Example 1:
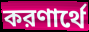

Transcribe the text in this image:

করণার্থে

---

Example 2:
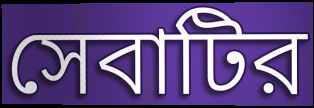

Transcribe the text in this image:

সেবাটির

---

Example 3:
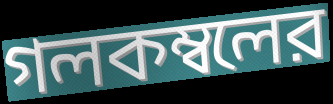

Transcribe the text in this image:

গলকম্বলের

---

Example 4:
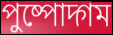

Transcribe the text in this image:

পুষ্পোদ্গম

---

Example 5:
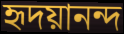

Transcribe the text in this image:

হৃদয়ানন্দ